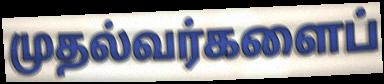
முதல்வர்களைப்